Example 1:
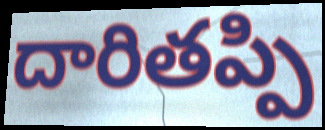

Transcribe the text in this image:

దారితప్పి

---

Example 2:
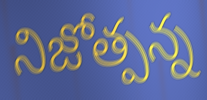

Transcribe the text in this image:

నిజోత్పన్న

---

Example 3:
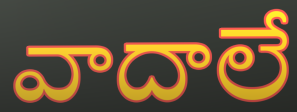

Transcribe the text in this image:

వాదాలే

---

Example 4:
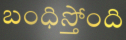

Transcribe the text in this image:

బంధిస్తోంది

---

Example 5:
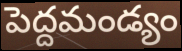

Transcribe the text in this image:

పెద్దమండ్యం